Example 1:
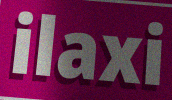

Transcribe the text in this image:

ilaxi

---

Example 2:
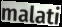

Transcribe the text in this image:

malati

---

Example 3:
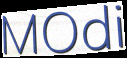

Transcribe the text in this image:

MOdi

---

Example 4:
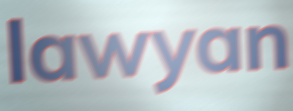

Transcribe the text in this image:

lawyan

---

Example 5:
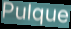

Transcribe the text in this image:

Pulque